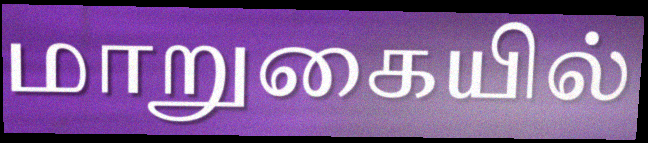
மாறுகையில்